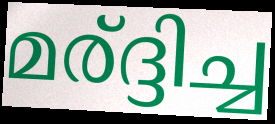
മര്ദ്ദിച്ച